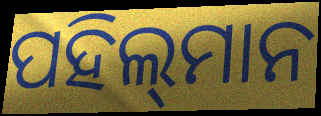
ପହିଲ୍‌ମାନ